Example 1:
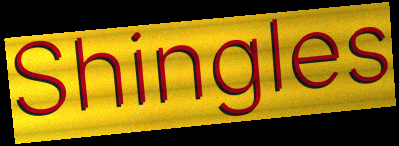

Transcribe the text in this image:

Shingles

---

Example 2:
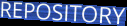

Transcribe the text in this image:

REPOSITORY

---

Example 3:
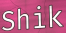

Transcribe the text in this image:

Shik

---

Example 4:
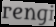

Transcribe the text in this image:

rengi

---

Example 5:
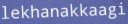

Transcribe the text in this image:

lekhanakkaagi